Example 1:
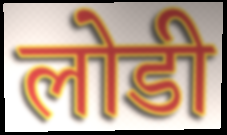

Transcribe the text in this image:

लोडी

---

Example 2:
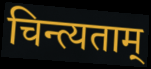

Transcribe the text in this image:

चिन्त्यताम्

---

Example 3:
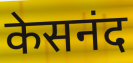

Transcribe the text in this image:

केसनंद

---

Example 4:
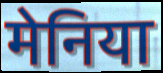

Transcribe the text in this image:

मेनिया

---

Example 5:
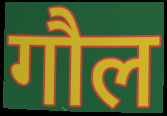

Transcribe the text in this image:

गौल